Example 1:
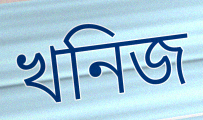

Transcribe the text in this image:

খনিজ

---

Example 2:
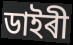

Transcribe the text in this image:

ডাইৰী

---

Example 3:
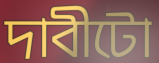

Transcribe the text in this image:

দাবীটো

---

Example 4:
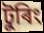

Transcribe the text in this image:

টুৰিং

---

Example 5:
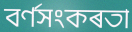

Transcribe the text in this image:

বৰ্ণসংকৰতা